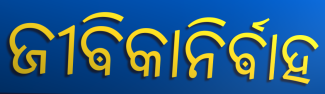
ଜୀଵିକାନିର୍ଵାହ